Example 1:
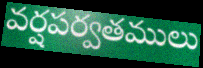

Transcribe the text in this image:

వర్షపర్వతములు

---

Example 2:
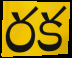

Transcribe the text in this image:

రక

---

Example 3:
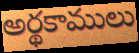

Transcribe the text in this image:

అర్థకాములు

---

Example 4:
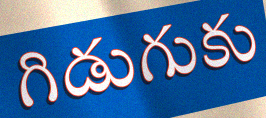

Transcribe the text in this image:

గిడుగుకు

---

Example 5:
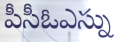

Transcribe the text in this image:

పీసీఓఎస్ను